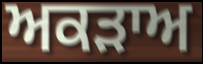
ਅਕੜਾਅ